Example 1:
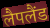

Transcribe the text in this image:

लैपलैंड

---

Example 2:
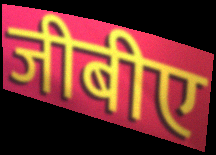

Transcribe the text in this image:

जीबीए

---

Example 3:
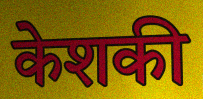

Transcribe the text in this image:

केशकी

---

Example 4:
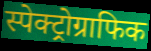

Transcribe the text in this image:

स्पेक्ट्रोग्राफिक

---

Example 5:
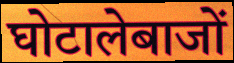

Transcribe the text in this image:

घोटालेबाजों